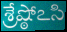
శ్రేష్ఠోఽసి